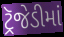
ટ્રૅજેડીમાં